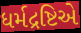
ધર્મદ્રષ્ટિએ